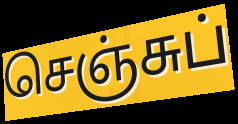
செஞ்சுப்